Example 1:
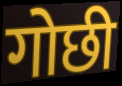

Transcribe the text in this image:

गोछी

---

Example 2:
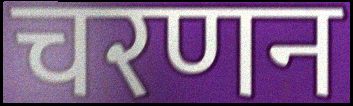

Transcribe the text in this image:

चरणन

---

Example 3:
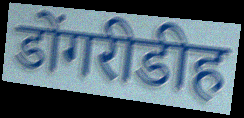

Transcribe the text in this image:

डोंगरीडीह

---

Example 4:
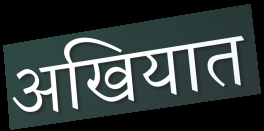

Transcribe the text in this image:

अखियात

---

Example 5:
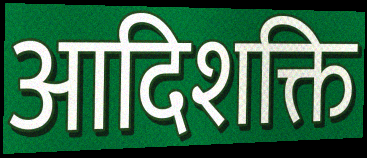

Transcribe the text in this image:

आदिशक्ति